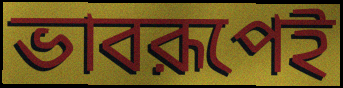
ভাবরূপেই